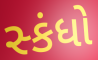
સ્કંધો